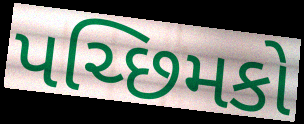
પચ્છિમકો